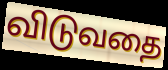
விடுவதை